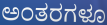
ಅಂತರಗಳೂ